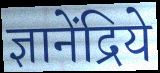
ज्ञानेंद्रिये